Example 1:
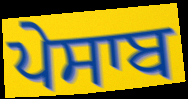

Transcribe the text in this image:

ਪੇਸਾਬ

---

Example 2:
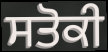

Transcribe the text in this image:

ਸਤੋਕੀ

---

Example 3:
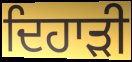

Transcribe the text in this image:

ਦਿਹਾੜੀ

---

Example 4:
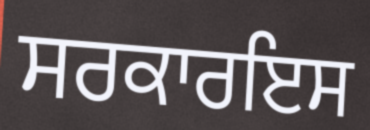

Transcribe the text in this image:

ਸਰਕਾਰਇਸ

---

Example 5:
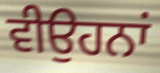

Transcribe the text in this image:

ਵੀਉਹਨਾਂ